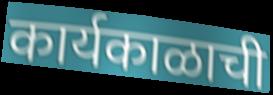
कार्यकाळाची